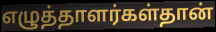
எழுத்தாளர்கள்தான்